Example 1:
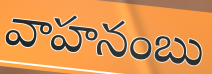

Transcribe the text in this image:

వాహనంబు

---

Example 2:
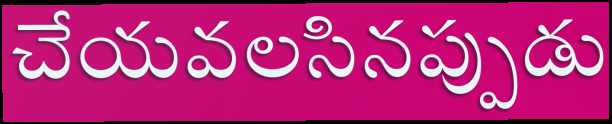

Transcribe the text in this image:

చేయవలసినప్పుడు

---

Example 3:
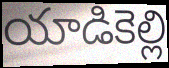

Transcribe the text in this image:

యాడికెల్లి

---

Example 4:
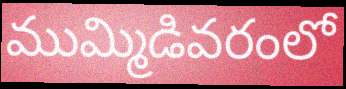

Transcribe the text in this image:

ముమ్మిడివరంలో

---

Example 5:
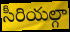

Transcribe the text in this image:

సీరియల్గా